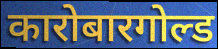
कारोबारगोल्ड